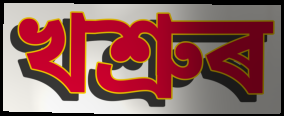
খশ্ৰুৰ